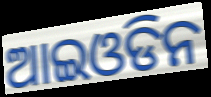
ଆଇଓଡିନ